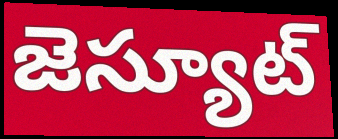
జెస్యూట్